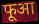
फूआ